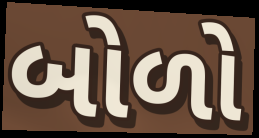
બોળો